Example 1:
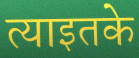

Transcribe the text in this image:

त्याइतके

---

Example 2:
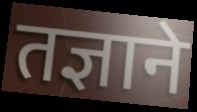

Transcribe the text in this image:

तज्ञाने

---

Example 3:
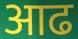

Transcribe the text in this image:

आढ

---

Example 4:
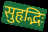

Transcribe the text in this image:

सुहृद्भिः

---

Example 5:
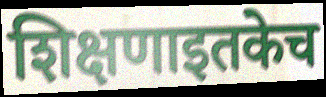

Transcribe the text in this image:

शिक्षणाइतकेच